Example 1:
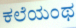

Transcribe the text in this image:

ಕಲೆಯಂಥ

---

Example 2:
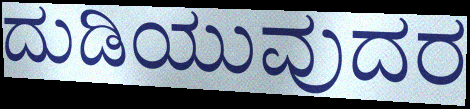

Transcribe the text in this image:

ದುಡಿಯುವುದರ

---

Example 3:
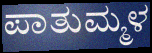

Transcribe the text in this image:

ಪಾತುಮ್ಮಳ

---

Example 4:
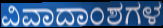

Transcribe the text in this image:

ವಿವಾದಾಂಶಗಳ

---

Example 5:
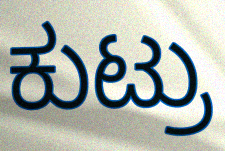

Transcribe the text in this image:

ಕುಟ್ರು